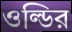
ওল্ডির